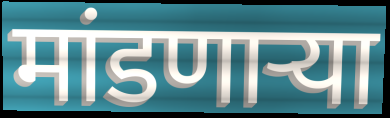
मांडणार्‍या